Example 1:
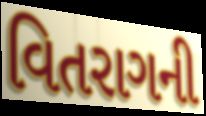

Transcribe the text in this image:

વિતરાગની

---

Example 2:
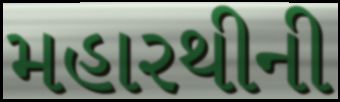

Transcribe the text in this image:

મહારથીની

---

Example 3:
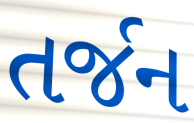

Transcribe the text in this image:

તર્જન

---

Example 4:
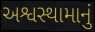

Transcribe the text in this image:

અશ્વસ્થામાનું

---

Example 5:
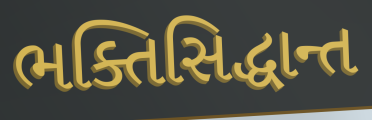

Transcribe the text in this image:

ભક્તિસિદ્ધાન્ત